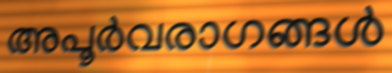
അപൂർവരാഗങ്ങൾ